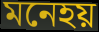
মনেহয়